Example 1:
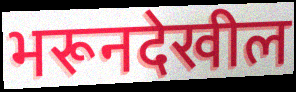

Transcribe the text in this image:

भरूनदेखील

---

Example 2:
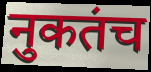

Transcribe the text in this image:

नुकतंच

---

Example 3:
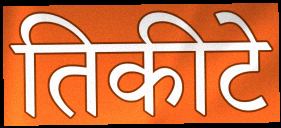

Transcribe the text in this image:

तिकीटे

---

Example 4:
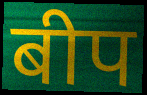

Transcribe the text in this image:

बीप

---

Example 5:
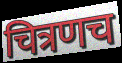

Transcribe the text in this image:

चित्रणच